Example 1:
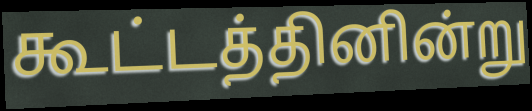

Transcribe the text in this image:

கூட்டத்தினின்று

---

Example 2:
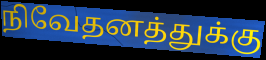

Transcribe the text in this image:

நிவேதனத்துக்கு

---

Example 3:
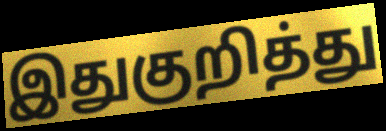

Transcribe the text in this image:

இதுகுறித்து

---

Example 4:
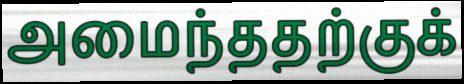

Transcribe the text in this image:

அமைந்ததற்குக்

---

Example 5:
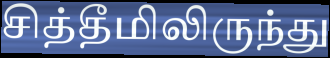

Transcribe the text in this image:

சித்தீமிலிருந்து